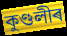
কুণ্ডলীৰ